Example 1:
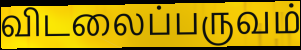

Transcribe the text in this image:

விடலைப்பருவம்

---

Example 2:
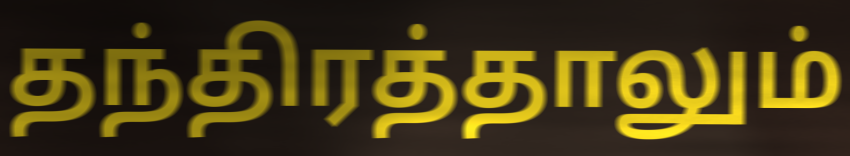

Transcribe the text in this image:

தந்திரத்தாலும்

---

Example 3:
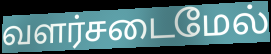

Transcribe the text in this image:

வளர்சடைமேல்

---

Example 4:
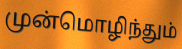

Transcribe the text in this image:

முன்மொழிந்தும்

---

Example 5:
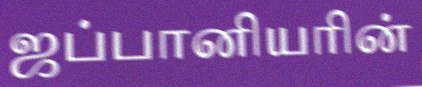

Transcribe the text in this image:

ஜப்பானியரின்